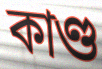
কাণ্ড